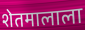
शेतमालाला